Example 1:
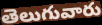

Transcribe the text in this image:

తెలుగువారు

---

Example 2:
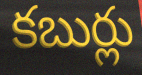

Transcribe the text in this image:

కబుర్లు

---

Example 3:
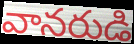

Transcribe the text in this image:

వానరుడి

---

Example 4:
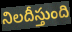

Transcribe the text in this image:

నిలదీస్తుంది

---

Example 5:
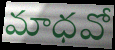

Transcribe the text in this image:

మాధవో